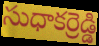
సుధాకర్రెడ్డి